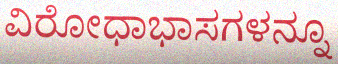
ವಿರೋಧಾಭಾಸಗಳನ್ನೂ